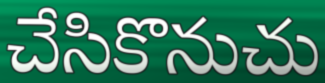
చేసికొనుచు